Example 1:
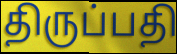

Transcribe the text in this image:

திருப்பதி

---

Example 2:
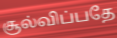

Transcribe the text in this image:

சூல்விப்பதே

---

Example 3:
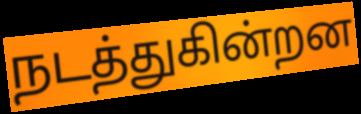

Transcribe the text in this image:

நடத்துகின்றன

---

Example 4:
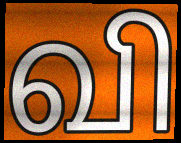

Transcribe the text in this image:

வி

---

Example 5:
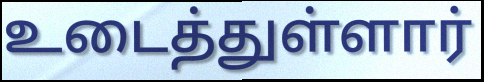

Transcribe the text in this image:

உடைத்துள்ளார்